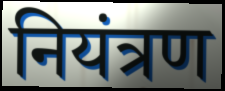
नियंत्रण